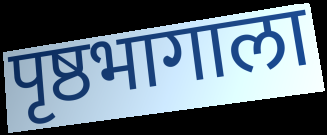
पृष्ठभागाला